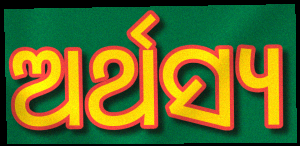
ଅର୍ଥସ୍ୟ